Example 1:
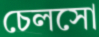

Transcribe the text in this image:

চেলসো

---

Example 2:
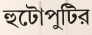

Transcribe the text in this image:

হুটোপুটির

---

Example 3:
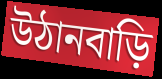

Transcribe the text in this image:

উঠানবাড়ি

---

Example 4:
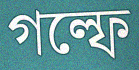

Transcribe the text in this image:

গল্ফে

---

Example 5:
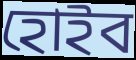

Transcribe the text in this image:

হোইব